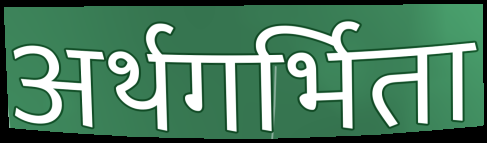
अर्थगर्भिता